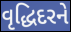
વૃદ્ધિદરને